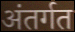
अंतर्गत